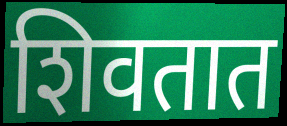
शिवतात